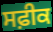
ਸਫ਼ੀਕ